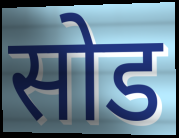
सोड